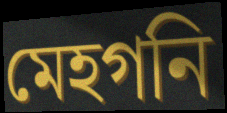
মেহগনি